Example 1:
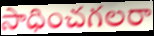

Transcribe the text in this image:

సాధించగలరా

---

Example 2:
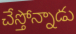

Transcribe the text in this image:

చేస్తోన్నాడు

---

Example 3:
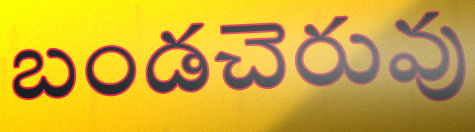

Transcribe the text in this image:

బండచెరువు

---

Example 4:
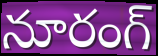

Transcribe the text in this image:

నూరంగ్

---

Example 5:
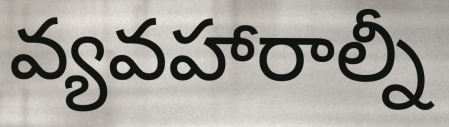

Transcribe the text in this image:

వ్యవహారాల్నీ